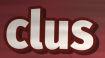
clus